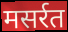
मसर्रत